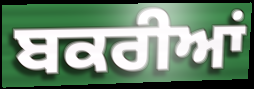
ਬਕਰੀਆਂ